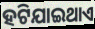
ହଟିଯାଇଥାଏ